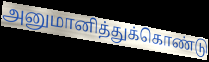
அனுமானித்துக்கொண்டு